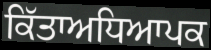
ਕਿੱਤਾਅਧਿਆਪਕ